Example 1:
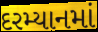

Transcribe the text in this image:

દરમ્યાનમાં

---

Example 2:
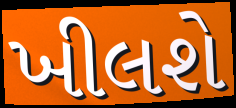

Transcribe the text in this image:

ખીલશે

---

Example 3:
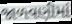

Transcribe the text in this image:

જાળવણીમાં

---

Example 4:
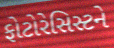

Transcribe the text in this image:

ફોટોરેસિસ્ટને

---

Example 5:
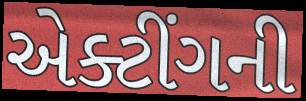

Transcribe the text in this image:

એક્ટીંગની